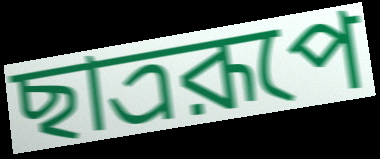
ছাত্ররূপে